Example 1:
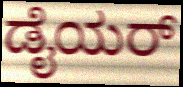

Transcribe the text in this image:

ಡೈಯರ್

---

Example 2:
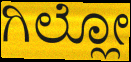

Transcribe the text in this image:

ಗಿಲ್ಲೋ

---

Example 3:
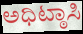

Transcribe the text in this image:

ಅಧಿಟ್ಠಾಸಿ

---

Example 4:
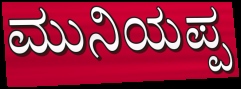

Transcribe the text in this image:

ಮುನಿಯಪ್ಪ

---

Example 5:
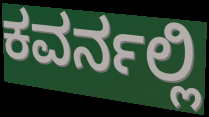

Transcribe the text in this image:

ಕವರ್ನಲ್ಲಿ